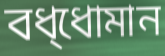
বধ্ধোমান